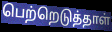
பெற்றெடுத்தாள்